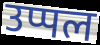
उप्पल